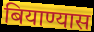
बियाण्यास